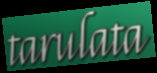
tarulata